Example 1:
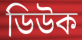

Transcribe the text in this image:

ডিউক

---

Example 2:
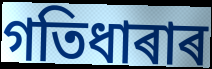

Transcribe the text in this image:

গতিধাৰাৰ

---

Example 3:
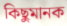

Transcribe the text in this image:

কিছুমানক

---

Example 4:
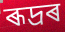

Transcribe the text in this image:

ৰূদ্ৰৰ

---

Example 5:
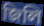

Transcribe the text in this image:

জিলি